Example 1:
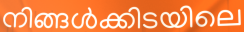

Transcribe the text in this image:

നിങ്ങൾക്കിടയിലെ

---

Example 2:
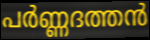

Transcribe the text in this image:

പർണ്ണദത്തൻ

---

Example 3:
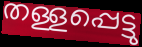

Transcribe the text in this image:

തള്ളപ്പെട്ടു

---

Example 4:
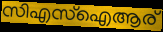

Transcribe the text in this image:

സിഎസ്ഐആര്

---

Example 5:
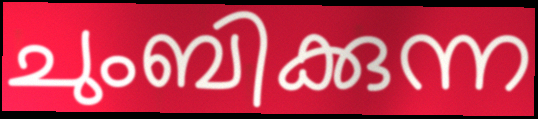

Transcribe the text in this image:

ചുംബിക്കുന്ന